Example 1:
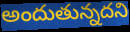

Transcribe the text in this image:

అందుతున్నదని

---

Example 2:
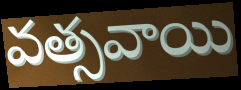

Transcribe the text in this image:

వత్సవాయి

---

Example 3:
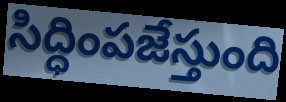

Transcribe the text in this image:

సిద్ధింపజేస్తుంది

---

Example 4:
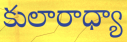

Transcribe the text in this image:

కులారాధ్యా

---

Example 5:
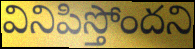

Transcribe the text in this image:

వినిపిస్తోందని